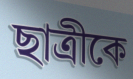
ছাত্রীকে